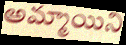
అమ్మాయిని